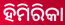
ହିମିରିକା